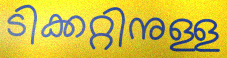
ടിക്കറ്റിനുള്ള